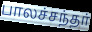
பாலச்சந்தர்